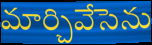
మార్చివేసెను